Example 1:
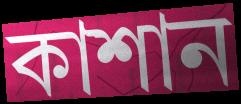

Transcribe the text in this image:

কাশান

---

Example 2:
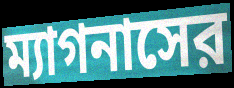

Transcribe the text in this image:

ম্যাগনাসের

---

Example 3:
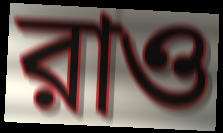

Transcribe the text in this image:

রাও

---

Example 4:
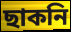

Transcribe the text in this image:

ছাকনি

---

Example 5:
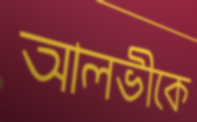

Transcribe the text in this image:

আলভীকে